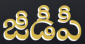
జీడీపీ